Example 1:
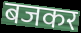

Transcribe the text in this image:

बजकर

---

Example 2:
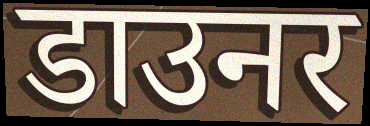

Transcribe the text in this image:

डाउनर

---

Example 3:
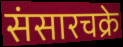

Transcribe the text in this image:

संसारचक्रे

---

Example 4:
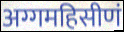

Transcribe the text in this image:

अग्गमहिसीणं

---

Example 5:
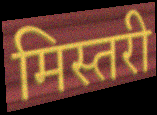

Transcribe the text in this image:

मिस्तरी